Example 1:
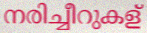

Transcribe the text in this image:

നരിച്ചീറുകള്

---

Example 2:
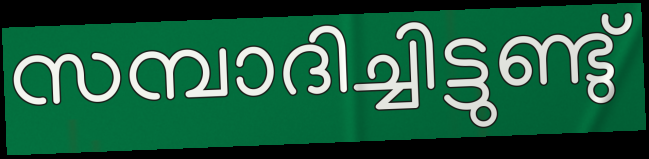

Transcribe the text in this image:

സമ്പാദിച്ചിട്ടുണ്ടു്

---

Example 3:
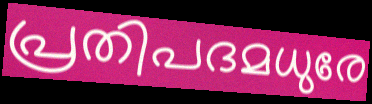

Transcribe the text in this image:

പ്രതിപദമധുരേ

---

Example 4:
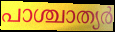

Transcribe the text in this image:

പാശ്ചാത്യർ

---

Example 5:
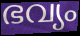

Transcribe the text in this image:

ഭവ്യം